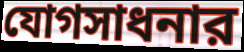
যোগসাধনার